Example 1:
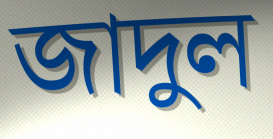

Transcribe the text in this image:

জাদুল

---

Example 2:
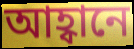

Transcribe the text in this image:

আহ্বানে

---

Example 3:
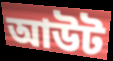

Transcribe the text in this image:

আউট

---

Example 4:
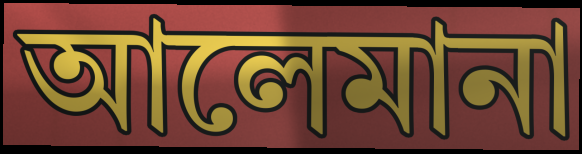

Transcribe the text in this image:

আলেমানা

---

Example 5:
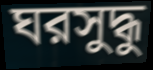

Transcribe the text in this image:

ঘরসুদ্ধু